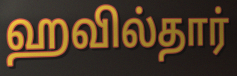
ஹவில்தார்